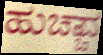
ಹುಚ್ಚಾದ